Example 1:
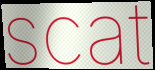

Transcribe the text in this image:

scat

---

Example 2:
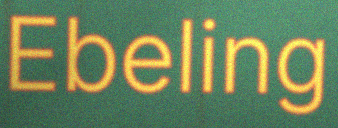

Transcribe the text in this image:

Ebeling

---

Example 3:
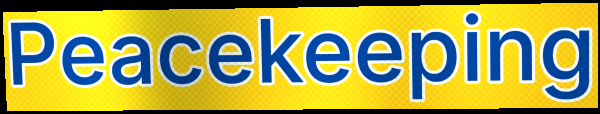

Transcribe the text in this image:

Peacekeeping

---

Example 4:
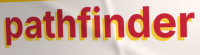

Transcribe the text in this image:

pathfinder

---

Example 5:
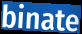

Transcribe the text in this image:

binate